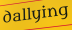
dallying